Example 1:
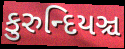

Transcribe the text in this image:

કુરુન્દિયઞ્ચ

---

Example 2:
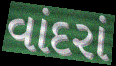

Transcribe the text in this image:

વાંદરાં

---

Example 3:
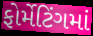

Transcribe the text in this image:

ફોર્મેટિંગમાં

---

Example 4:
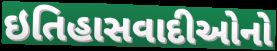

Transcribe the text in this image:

ઇતિહાસવાદીઓનો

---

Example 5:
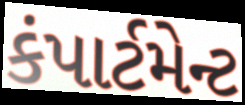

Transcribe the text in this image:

કંપાર્ટમેન્ટ